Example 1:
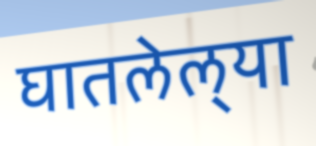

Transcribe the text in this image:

घातलेल्या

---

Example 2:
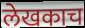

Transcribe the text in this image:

लेखकाच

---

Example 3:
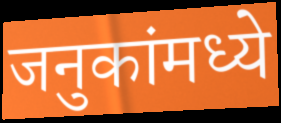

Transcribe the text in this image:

जनुकांमध्ये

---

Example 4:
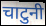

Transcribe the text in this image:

चाटुनी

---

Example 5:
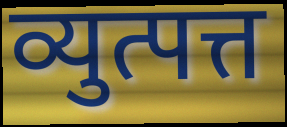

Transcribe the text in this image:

व्युत्पत्त